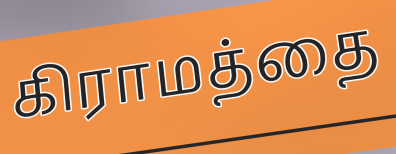
கிராமத்தை